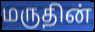
மருதின்